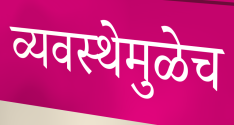
व्यवस्थेमुळेच